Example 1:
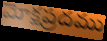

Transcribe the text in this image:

మోక్షప్రదము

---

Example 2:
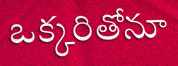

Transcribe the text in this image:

ఒక్కరితోనూ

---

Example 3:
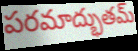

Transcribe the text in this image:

పరమాద్భుతమ్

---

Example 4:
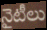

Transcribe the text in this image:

నైటీలు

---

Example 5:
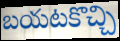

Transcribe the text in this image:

బయటకొచ్చి